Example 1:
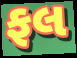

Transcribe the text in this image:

ફલ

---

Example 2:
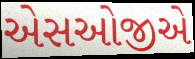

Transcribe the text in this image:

એસઓજીએ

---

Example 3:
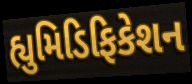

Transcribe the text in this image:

હ્યુમિડિફિકેશન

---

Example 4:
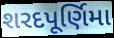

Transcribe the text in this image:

શરદપૂર્ણિમા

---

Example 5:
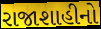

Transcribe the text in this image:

રાજાશાહીનો